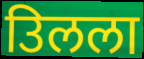
उिलला